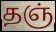
தஞ்